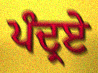
ਪੰਦ੍ਰਏ